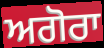
ਅਗੋਰਾ